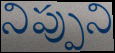
నిప్పుని